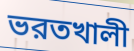
ভরতখালী